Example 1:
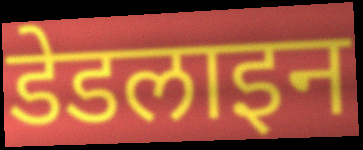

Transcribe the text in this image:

डेडलाइन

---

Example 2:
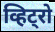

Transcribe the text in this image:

व्हिट्रो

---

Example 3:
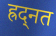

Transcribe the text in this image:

ह्रद्नत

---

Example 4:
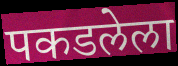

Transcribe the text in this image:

पकडलेला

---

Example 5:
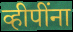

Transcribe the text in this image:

व्हीपींना